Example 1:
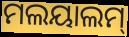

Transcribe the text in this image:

ମଲୟାଲମ୍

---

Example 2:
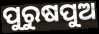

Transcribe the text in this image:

ପୁରୁଷପୁଅ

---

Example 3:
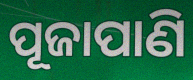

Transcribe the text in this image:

ପୂଜାପାଣି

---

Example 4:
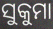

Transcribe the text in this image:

ସୁକୁମା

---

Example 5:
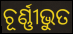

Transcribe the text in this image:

ଚୂର୍ଣ୍ଣୀଭୁତ